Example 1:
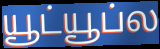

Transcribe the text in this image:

யூட்யூப்ல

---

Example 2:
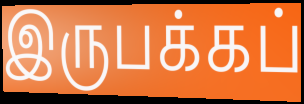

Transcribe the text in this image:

இருபக்கப்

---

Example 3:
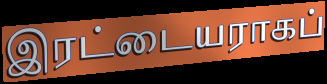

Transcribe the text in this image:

இரட்டையராகப்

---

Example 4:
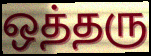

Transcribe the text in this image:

ஒத்தரு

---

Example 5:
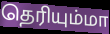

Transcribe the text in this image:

தெரியும்மா